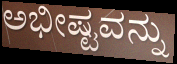
ಅಭೀಷ್ಟವನ್ನು